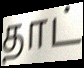
தாட்